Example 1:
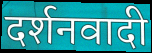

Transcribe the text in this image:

दर्शनवादी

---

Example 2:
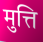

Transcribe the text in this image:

मुत्ति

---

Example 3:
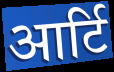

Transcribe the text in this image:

आर्टि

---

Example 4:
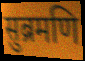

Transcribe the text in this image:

सुब्रमणि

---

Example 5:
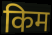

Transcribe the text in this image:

किम